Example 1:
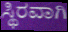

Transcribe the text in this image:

ಸ್ಥಿರವಾಗಿ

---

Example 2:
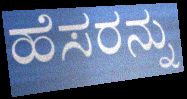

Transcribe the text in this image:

ಹೆಸರನ್ನು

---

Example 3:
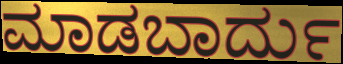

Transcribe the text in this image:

ಮಾಡಬಾರ್ದು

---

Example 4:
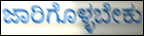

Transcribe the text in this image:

ಜಾರಿಗೊಳ್ಳಬೇಕು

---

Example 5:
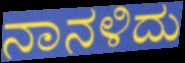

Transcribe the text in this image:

ನಾನಳಿದು